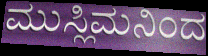
ಮುಸ್ಲಿಮನಿಂದ